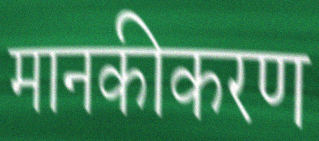
मानकीकरण